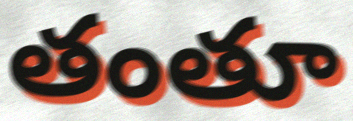
తంతూ